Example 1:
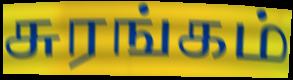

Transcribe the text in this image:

சுரங்கம்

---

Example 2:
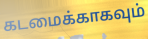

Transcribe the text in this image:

கடமைக்காகவும்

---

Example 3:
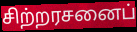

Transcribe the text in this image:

சிற்றரசனைப்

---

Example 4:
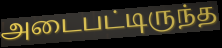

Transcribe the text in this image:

அடைபட்டிருந்த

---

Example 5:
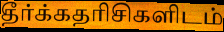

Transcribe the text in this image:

தீர்க்கதரிசிகளிடம்